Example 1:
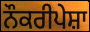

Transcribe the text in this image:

ਨੌਕਰੀਪੇਸ਼ਾ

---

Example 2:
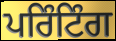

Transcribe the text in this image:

ਪਰਿੰਟਿੰਗ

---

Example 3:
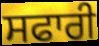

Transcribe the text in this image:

ਸਫਾਰੀ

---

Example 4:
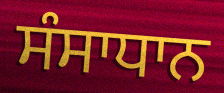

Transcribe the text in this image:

ਸੰਸਾਧਾਨ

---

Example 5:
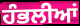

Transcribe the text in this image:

ਹੰਭਲੀਆਂ